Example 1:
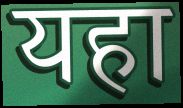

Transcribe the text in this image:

यहा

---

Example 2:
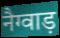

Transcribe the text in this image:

नैग्वाड़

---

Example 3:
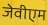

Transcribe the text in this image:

जेवीएम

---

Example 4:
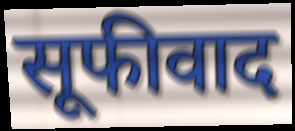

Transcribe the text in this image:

सूफीवाद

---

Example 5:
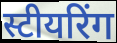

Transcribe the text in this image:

स्टीयरिंग